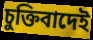
চুক্তিবাদেই